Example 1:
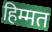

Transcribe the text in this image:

हिम्मत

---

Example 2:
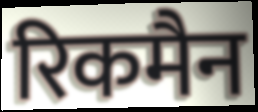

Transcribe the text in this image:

रिकमैन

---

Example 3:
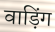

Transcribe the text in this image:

वाड़िंग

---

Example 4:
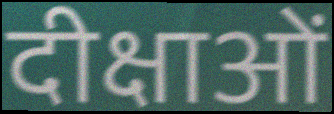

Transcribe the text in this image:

दीक्षाओं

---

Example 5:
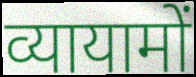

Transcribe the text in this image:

व्यायामों